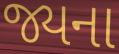
જ્યના